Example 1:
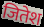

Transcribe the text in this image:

जितेश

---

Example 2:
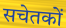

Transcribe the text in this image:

सचेतकों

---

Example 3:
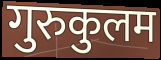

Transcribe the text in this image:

गुरुकुलम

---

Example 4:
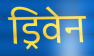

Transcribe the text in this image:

ड्रिवेन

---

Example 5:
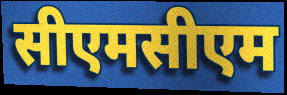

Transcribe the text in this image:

सीएमसीएम